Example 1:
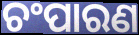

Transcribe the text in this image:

ଚଂପାରଣ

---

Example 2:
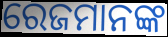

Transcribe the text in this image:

ରେଜମାନଙ୍କ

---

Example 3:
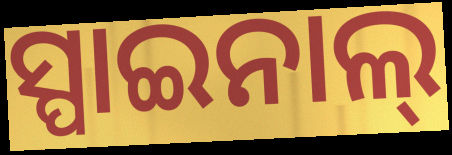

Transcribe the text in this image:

ସ୍ପାଇନାଲ୍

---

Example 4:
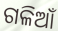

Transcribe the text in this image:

ଗଳିଆଁ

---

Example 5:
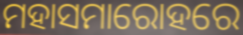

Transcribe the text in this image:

ମହାସମାରୋହରେ